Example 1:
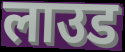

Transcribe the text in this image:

लाउड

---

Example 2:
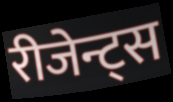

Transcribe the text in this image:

रीजेन्ट्स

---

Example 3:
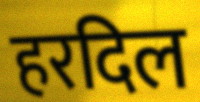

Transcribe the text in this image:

हरदिल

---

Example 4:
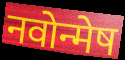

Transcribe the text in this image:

नवोन्‍मेष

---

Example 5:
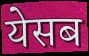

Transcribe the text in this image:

येसब